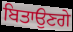
ਬਿਤਾਉਣਗੇ